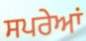
ਸਪਰੇਆਂ